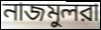
নাজমুলরা